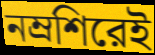
নম্রশিরেই